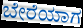
ಬೇರೆಯಾಗ